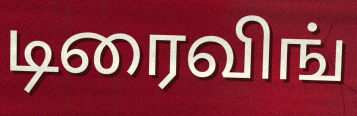
டிரைவிங்